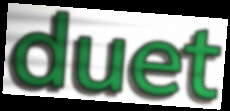
duet